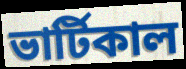
ভার্টিকাল